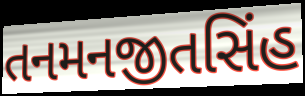
તનમનજીતસિંહ